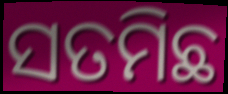
ସତମିଛ